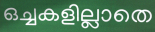
ഒച്ചകളില്ലാതെ